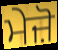
ਮੇਜ਼ੋ